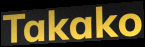
Takako